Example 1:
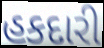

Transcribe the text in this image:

હકદારી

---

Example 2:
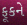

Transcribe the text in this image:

ફૂકને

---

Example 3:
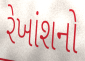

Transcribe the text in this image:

રેખાંશનો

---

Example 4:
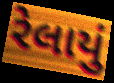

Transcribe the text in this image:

રેલાયું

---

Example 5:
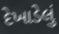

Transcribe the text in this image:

દેખાડેલું